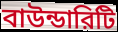
বাউন্ডারিটি